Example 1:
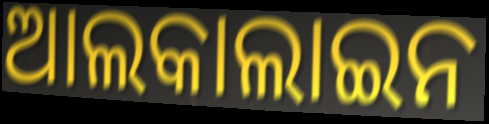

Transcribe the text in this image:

ଆଲକାଲାଇନ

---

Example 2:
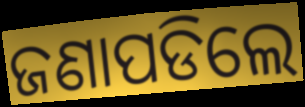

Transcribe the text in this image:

ଜଣାପଡିଲେ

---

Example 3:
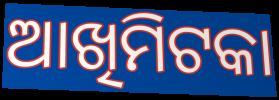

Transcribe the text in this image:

ଆଖିମିଟକା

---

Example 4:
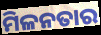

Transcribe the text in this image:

ମିଳନତାର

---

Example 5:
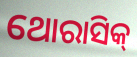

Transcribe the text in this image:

ଥୋରାସିକ୍